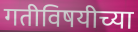
गतीविषयीच्या